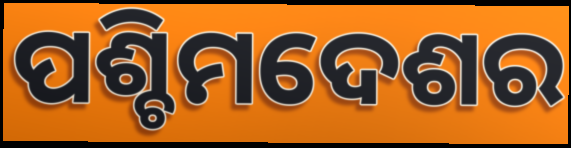
ପଶ୍ଚିମଦେଶର